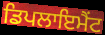
ਡਿਪਲਾਇਮੈਂਟ